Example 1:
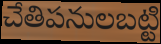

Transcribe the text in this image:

చేతిపనులబట్టి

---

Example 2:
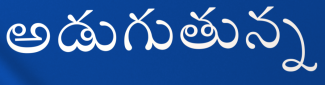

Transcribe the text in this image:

అడుగుతున్న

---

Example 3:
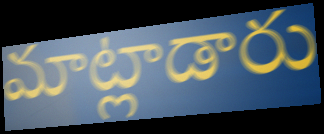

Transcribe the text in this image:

మాట్లాడారు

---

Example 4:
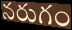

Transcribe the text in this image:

నరుగం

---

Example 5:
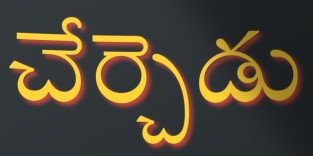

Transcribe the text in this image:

చేర్చెడు